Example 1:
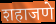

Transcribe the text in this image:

शहाजणे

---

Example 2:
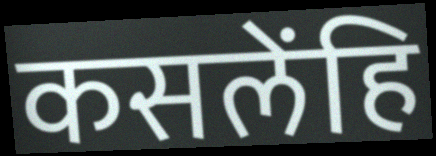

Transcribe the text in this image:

कसलेंहि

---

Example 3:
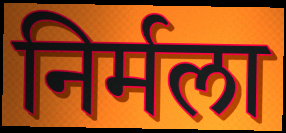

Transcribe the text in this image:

निर्मला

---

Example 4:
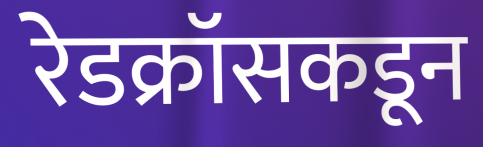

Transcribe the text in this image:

रेडक्रॉसकडून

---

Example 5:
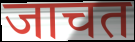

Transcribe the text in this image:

जाचत